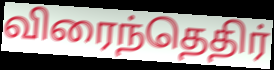
விரைந்தெதிர்